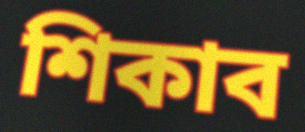
শিকাব